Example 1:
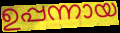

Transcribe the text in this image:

ഉപ്പന്നായ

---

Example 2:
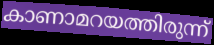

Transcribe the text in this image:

കാണാമറയത്തിരുന്ന്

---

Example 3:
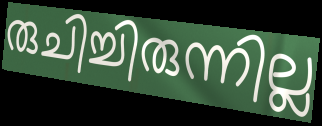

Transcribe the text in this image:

രുചിച്ചിരുന്നില്ല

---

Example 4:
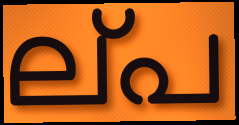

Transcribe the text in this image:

ല്‌പ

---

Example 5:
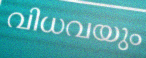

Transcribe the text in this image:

വിധവയും